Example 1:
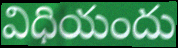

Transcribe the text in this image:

విధియందు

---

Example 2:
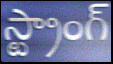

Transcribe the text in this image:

స్ట్రాంగ్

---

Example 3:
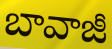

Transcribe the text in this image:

బావాజీ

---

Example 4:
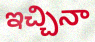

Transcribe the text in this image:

ఇచ్చినా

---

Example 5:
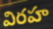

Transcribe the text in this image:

విరహ